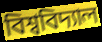
বিশ্ববিদ্যাল